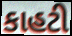
કાહટી